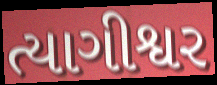
ત્યાગીશ્વર